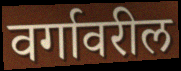
वर्गावरील